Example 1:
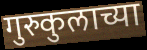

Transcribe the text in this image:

गुरुकुलाच्या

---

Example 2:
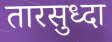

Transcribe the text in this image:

तारसुध्दा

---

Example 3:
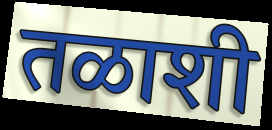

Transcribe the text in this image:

तळाशी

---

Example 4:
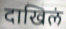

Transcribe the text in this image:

दाखिलं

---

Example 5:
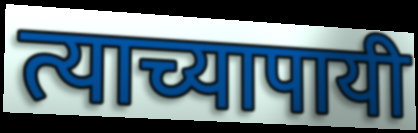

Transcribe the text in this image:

त्याच्यापायी